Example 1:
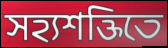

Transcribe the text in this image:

সহ্যশক্তিতে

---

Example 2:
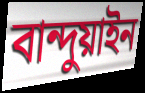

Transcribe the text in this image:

বান্দুয়াইন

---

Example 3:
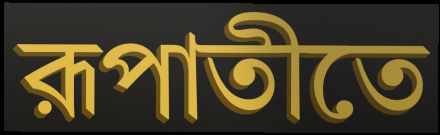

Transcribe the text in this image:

রূপাতীতে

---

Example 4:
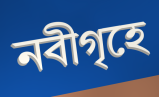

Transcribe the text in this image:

নবীগৃহে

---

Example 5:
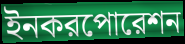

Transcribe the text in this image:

ইনকরপোরেশন